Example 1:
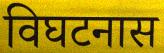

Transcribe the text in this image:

विघटनास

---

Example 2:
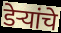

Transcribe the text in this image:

डेर्‍यांचे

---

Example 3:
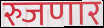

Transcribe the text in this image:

रुजणार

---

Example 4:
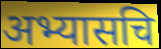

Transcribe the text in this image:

अभ्यासचि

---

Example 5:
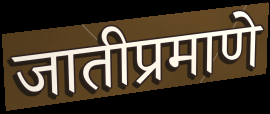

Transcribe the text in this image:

जातीप्रमाणे